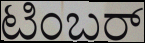
ಟಿಂಬರ್